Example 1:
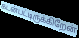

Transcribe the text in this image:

கடன்பட்டிருக்கிறேன்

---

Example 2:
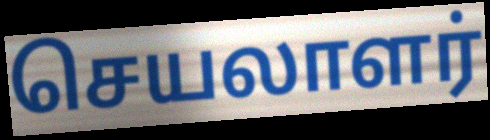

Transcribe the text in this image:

செயலாளர்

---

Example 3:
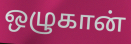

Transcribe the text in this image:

ஒழுகான்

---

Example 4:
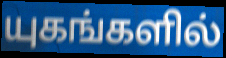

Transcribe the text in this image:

யுகங்களில்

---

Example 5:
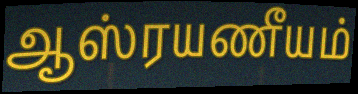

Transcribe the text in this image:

ஆஸ்ரயணீயம்